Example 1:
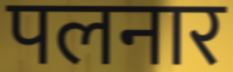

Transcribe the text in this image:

पलनार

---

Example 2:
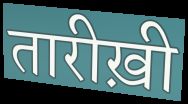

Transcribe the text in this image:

तारीख़ी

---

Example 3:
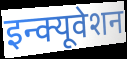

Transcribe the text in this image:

इन्क्यूवेशन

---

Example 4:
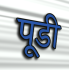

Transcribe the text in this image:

पूडी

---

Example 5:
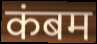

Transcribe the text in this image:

कंबम